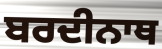
ਬਰਦੀਨਾਥ